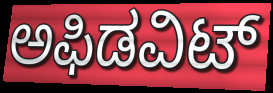
ಅಫಿಡವಿಟ್